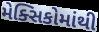
મેક્સિકોમાંથી